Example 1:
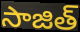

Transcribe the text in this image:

సాజిత్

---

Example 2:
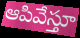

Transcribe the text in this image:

ఆపివేస్తూ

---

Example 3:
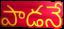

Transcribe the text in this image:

పాడనే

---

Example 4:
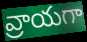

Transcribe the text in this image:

వ్రాయగా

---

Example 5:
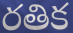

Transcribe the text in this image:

రతిక